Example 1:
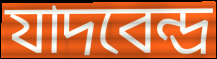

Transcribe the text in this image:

যাদবেন্দ্র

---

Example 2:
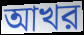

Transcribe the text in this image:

আখর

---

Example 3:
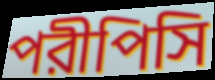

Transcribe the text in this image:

পরীপিসি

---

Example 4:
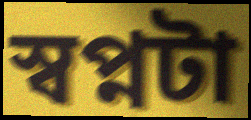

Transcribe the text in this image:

স্বপ্নটা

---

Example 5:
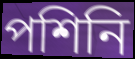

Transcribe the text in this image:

পশিনি